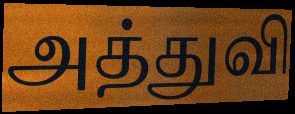
அத்துவி